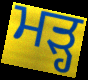
ਮੜ੍ਹ